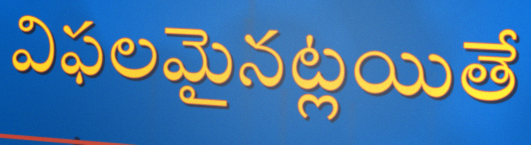
విఫలమైనట్లయితే